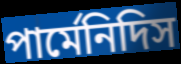
পার্মেনিদিস